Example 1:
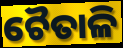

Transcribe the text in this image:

ଚୈତାଳି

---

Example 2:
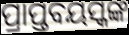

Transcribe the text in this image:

ପ୍ରାପ୍ତବୟସ୍କଙ୍କ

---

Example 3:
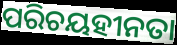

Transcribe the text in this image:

ପରିଚୟହୀନତା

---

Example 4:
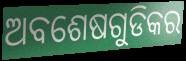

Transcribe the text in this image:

ଅବଶେଷଗୁଡିକର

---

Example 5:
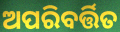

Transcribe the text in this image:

ଅପରିବର୍ତ୍ତିତ